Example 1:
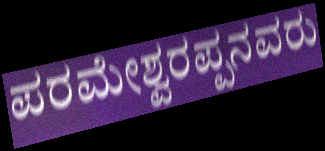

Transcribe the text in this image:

ಪರಮೇಶ್ವರಪ್ಪನವರು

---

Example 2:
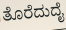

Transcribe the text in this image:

ತೊರೆದುದೈ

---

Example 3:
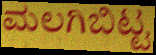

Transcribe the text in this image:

ಮಲಗಿಬಿಟ್ಟ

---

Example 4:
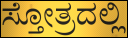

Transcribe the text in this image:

ಸ್ತೋತ್ರದಲ್ಲಿ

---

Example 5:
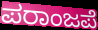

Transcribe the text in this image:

ಪರಾಂಜಪೆ